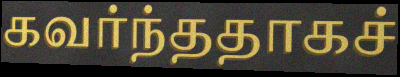
கவர்ந்ததாகச்